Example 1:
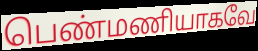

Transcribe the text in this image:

பெண்மணியாகவே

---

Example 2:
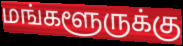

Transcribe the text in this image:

மங்களூருக்கு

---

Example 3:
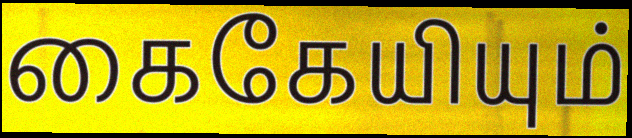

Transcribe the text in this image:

கைகேயியும்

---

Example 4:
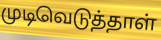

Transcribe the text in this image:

முடிவெடுத்தாள்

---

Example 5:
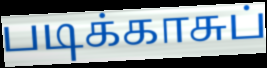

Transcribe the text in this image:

படிக்காசுப்